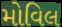
મોવિલ